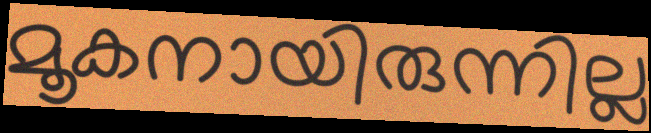
മൂകനായിരുന്നില്ല